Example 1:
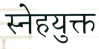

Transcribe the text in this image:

स्नेहयुक्त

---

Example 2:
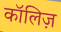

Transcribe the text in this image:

कॉलिज़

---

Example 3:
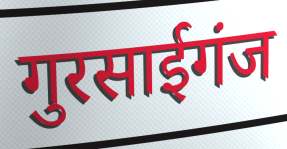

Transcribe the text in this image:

गुरसाईगंज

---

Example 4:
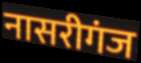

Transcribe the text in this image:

नासरीगंज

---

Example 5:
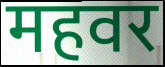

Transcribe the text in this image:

महवर